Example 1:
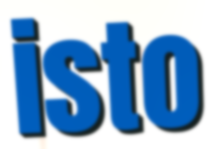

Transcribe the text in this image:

isto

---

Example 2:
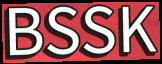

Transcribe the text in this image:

BSSK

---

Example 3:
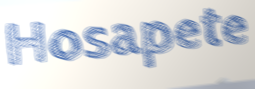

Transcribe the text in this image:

Hosapete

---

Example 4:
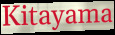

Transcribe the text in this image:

Kitayama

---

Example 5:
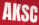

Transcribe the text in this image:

AKSC